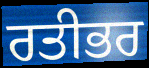
ਰਤੀਭਰ